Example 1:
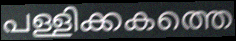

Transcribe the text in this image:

പള്ളിക്കകത്തെ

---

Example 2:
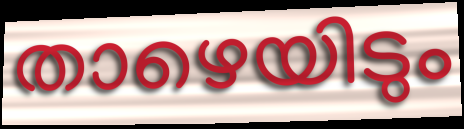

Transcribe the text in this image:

താഴെയിടും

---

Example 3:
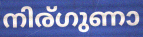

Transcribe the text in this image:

നിര്ഗുണാ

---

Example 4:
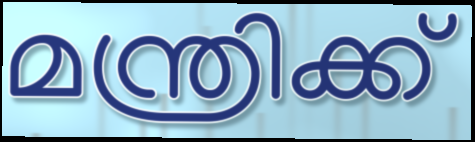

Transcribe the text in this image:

മന്ത്രിക്ക്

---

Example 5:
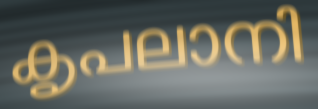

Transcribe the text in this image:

കൃപലാനി